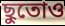
ছুতোও